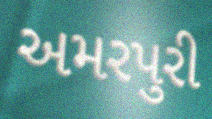
અમરપુરી